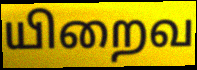
யிறைவ